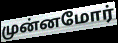
முன்னமோர்